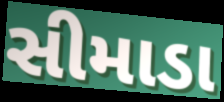
સીમાડા